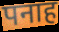
पनाह